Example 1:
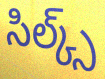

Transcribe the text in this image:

సిల్క్స్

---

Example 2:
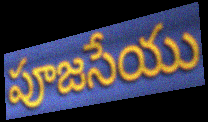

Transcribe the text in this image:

పూజసేయు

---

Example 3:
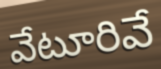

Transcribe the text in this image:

వేటూరివే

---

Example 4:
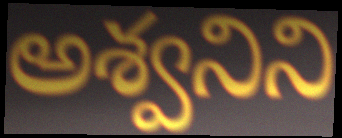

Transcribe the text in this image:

అశ్వనిని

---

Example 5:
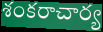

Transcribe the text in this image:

శంకరాచార్య